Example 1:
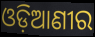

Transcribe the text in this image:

ଓଡ଼ିଆଣୀର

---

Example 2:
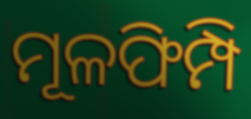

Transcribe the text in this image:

ମୂଳଫିମ୍ପି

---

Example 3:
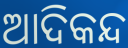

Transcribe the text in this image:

ଆଦିକନ୍ଦ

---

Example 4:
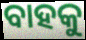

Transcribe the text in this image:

ବାହକୁ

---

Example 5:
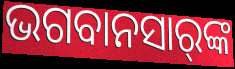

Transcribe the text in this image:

ଭଗବାନସାର୍‌ଙ୍କ